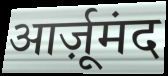
आर्ज़ूमंद